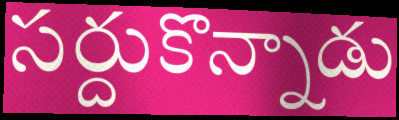
సర్దుకొన్నాడు